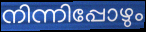
നിന്നിപ്പോഴും